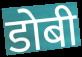
डोबी